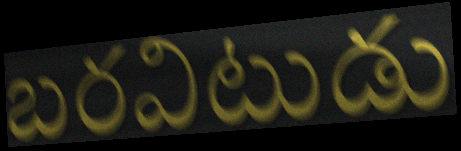
బరవిటుడు